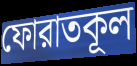
ফোরাতকূল